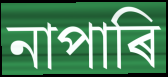
নাপাৰি